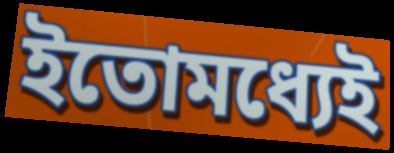
ইতোমধ্যেই